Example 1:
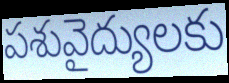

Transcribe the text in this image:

పశువైద్యులకు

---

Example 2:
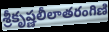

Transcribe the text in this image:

శ్రీకృష్ణలీలాతరంగిణి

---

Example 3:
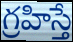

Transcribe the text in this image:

గ్రహిస్తే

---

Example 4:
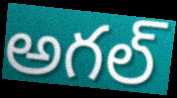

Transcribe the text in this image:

అగల్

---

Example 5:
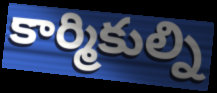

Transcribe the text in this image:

కార్మికుల్ని